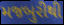
મજબુરીથી